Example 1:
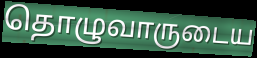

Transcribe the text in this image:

தொழுவாருடைய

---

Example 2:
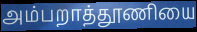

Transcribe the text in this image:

அம்பறாத்தூணியை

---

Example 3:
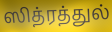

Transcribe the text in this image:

ஸித்ரத்துல்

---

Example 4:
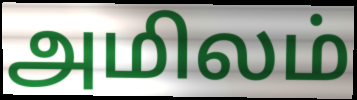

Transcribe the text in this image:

அமிலம்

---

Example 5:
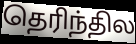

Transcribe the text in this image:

தெரிந்தில